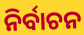
ନିର୍ବାଚନ